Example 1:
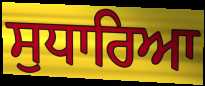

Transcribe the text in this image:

ਸੁਧਾਰਿਆ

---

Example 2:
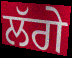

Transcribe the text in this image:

ਲੱਗੇ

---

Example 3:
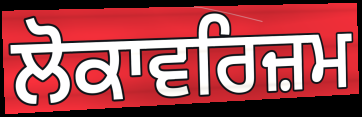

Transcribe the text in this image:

ਲੋਕਾਵਰਿਜ਼ਮ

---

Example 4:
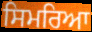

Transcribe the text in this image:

ਸਿਮਰਿਆ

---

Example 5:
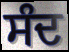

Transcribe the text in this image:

ਸੰਦ